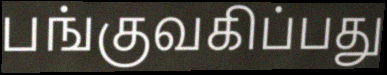
பங்குவகிப்பது